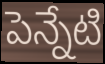
పెన్నేటి